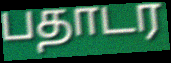
பதாடர